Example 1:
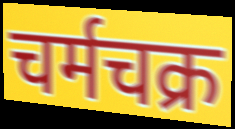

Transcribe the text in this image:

चर्मचक्र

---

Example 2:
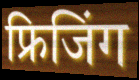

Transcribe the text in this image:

फ्रिजिंग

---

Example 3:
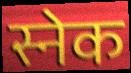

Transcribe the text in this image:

स्‍नेक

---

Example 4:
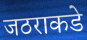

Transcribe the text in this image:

जठराकडे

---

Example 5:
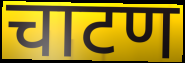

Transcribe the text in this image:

चाटण